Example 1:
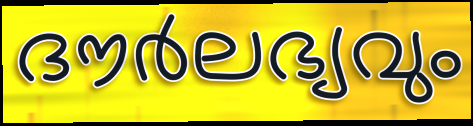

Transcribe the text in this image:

ദൗർലഭ്യവും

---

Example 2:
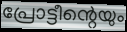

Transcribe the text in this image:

പ്രോട്ടീന്റെയും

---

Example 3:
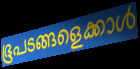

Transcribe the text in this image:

ഭൂപടങ്ങളെക്കാൾ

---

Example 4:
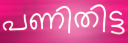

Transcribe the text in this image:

പണിതിട്ട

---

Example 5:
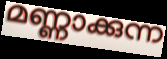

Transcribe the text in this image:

മണ്ണാക്കുന്ന